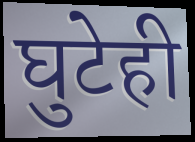
घुटेही